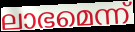
ലാഭമെന്ന്